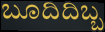
ಬೂದಿದಿಬ್ಬ